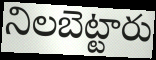
నిలబెట్టారు